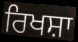
ਰਿਖਸ਼ਾ